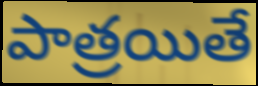
పాత్రయితే